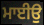
ਮਾਈਉ